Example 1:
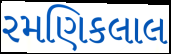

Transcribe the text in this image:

રમણિકલાલ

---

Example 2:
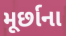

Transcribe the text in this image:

મૂર્છાના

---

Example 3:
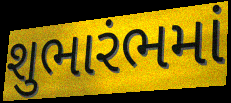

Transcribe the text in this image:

શુભારંભમાં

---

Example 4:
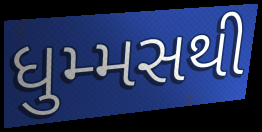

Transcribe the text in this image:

ધુમ્મસથી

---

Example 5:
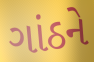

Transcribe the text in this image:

ગાંઠને